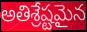
అతిశ్రేష్టమైన